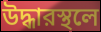
উদ্ধারস্থলে